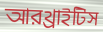
আরথ্রাইটিস